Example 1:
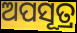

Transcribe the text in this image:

ଅପସୂତ୍ର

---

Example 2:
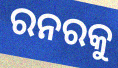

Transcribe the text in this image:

ରନରକୁ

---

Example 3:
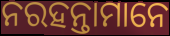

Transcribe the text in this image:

ନରହନ୍ତାମାନେ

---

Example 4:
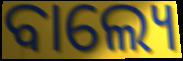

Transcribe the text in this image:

ବାଲ୍ୟେ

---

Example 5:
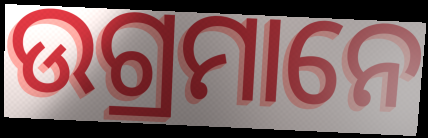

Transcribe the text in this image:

ଉଗ୍ରମାନେ